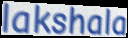
lakshala